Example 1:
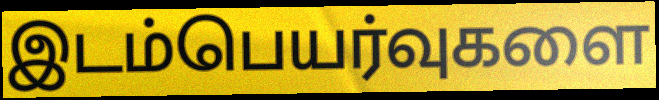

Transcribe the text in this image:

இடம்பெயர்வுகளை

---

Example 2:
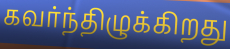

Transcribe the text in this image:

கவர்ந்திழுக்கிறது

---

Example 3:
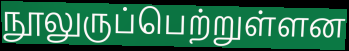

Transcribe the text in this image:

நூலுருப்பெற்றுள்ளன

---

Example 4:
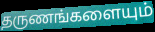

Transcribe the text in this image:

தருணங்களையும்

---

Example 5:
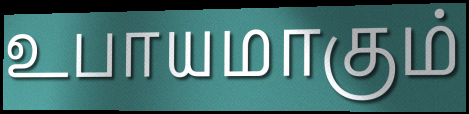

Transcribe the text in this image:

உபாயமாகும்